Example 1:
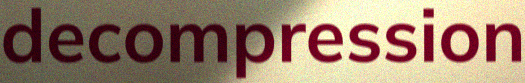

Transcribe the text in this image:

decompression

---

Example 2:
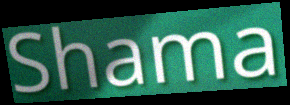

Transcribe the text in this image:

Shama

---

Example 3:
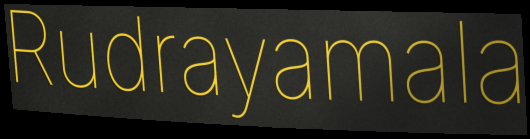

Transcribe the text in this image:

Rudrayamala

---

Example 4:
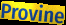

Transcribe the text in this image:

Provine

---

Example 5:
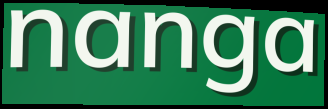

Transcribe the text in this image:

nanga